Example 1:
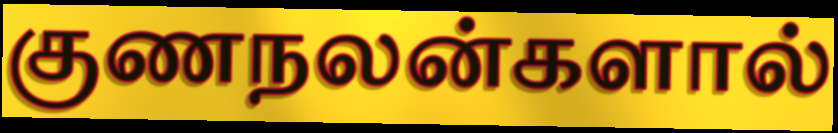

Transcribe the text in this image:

குணநலன்களால்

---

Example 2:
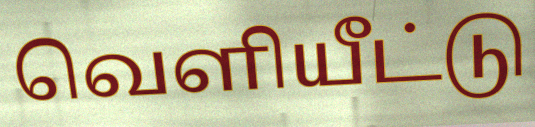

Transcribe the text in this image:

வெளியீட்டு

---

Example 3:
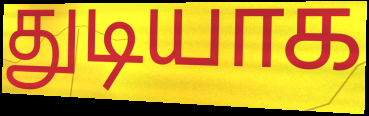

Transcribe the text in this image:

துடியாக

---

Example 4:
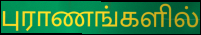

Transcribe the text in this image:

புராணங்களில்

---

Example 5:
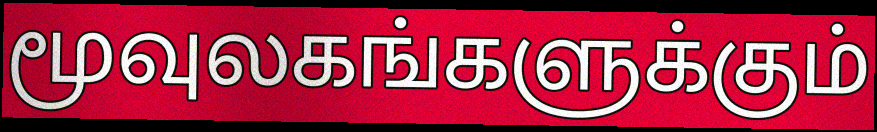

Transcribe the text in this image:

மூவுலகங்களுக்கும்